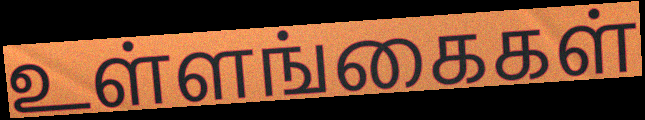
உள்ளங்கைகள்